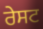
ਰੇਸਟ